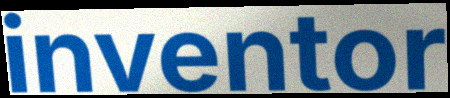
inventor